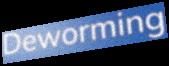
Deworming